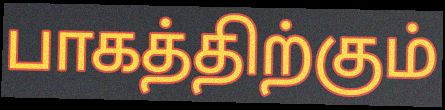
பாகத்திற்கும்